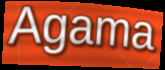
Agama